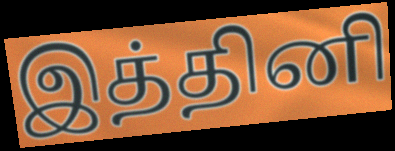
இத்தினி